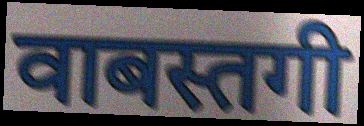
वाबस्तगी